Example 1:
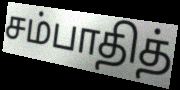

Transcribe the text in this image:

சம்பாதித்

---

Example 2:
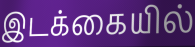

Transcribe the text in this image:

இடக்கையில்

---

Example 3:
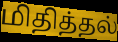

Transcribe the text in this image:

மிதித்தல்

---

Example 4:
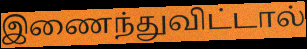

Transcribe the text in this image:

இணைந்துவிட்டால்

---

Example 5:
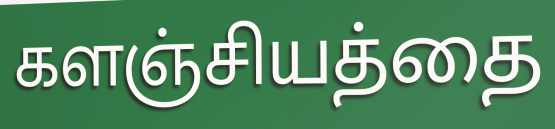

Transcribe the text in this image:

களஞ்சியத்தை